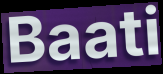
Baati